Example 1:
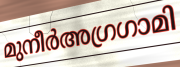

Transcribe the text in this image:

മുനീർഅഗ്രഗാമി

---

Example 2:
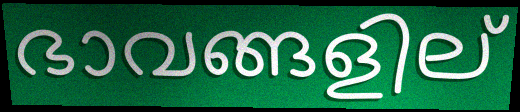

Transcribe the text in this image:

ഭാവങ്ങളില്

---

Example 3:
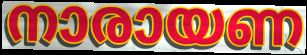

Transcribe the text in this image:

നാരായണ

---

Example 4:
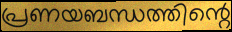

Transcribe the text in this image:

പ്രണയബന്ധത്തിന്റെ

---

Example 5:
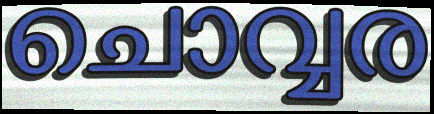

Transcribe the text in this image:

ചൊവ്വര